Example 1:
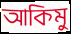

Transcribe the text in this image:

আকিমু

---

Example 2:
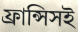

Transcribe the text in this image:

ফ্রান্সিসই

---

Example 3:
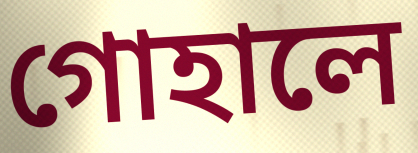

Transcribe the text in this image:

গোহালে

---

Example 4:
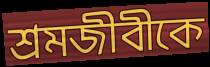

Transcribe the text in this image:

শ্রমজীবীকে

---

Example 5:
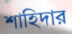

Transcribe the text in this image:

শাহিদার